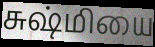
சுஷ்மியை